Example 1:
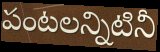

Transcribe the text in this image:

పంటలన్నిటినీ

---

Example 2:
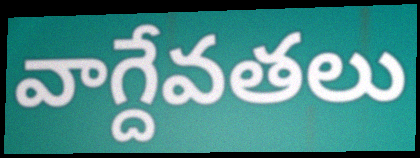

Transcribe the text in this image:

వాగ్దేవతలు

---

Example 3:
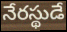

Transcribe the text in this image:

నేరస్థుడే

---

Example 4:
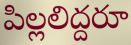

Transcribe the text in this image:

పిల్లలిద్దరూ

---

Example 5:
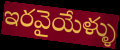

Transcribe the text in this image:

ఇరవైయేళ్ళు